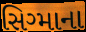
સિગ્માના